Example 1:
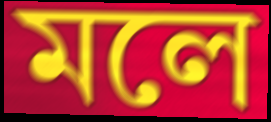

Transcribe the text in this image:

মলে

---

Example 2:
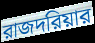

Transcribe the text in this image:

রাজদরিয়ার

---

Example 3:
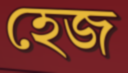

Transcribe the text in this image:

হেজ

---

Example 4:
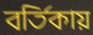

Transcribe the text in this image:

বর্তিকায়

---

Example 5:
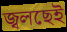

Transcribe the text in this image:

জ্বলছেই